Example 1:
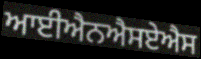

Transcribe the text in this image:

ਆਈਐਨਐਸਏਐਸ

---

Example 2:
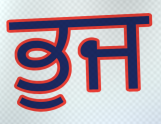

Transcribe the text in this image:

ਭੁਜ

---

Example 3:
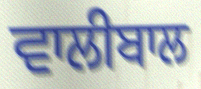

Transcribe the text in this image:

ਵਾਲੀਬਾਲ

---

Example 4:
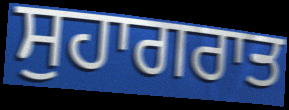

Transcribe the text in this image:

ਸੁਹਾਗਰਾਤ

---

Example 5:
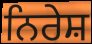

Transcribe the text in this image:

ਨਿਰੇਸ਼